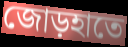
জোড়হাতে